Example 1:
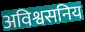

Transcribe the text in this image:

अविश्वसनिय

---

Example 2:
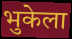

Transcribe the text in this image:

भुकेला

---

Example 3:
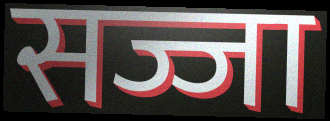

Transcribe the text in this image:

सज्जा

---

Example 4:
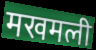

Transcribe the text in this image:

मखमली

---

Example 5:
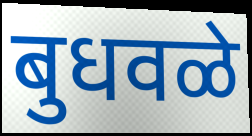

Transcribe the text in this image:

बुधवळे